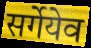
सर्गेयेव